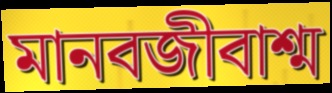
মানবজীবাশ্ম